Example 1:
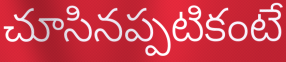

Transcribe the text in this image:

చూసినప్పటికంటే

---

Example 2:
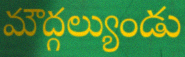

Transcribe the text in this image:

మౌద్గల్యుండు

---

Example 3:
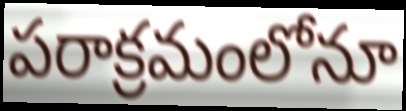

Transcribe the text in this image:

పరాక్రమంలోనూ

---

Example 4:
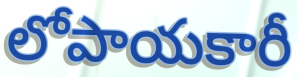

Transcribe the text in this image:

లోపాయకారీ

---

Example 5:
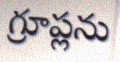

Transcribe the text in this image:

గ్రూప్లను